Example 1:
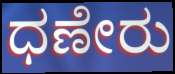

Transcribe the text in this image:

ಧಣೇರು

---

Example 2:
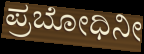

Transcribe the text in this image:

ಪ್ರಬೋಧಿನೀ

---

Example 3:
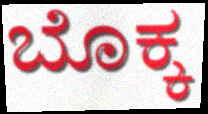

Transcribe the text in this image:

ಬೊಕ್ಕ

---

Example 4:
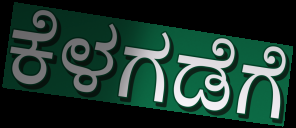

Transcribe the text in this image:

ಕೆಳಗಡೆಗೆ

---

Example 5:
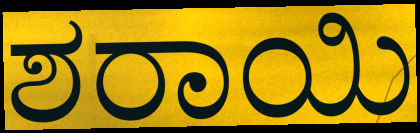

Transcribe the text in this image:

ಶರಾಯಿ